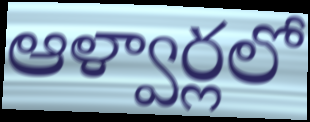
ఆళ్వార్లలో